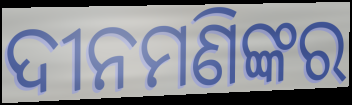
ଦୀନମଣିଙ୍କର